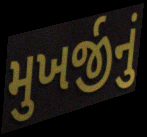
મુખર્જીનું